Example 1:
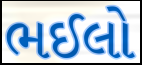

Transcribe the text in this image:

ભઈલો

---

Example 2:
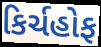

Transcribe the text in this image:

કિર્ચહોફ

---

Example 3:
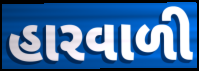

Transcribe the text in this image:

હારવાળી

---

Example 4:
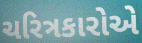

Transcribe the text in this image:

ચરિત્રકારોએ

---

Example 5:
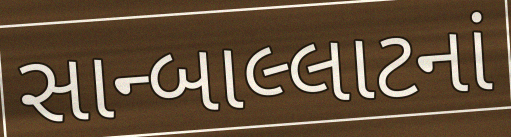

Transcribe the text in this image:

સાન્બાલ્લાટનાં